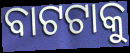
ବାଟଟାକୁ